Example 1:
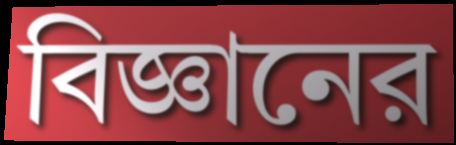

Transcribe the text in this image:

বিজ্ঞানের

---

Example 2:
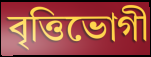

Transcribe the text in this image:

বৃত্তিভোগী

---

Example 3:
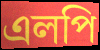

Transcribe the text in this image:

এলপি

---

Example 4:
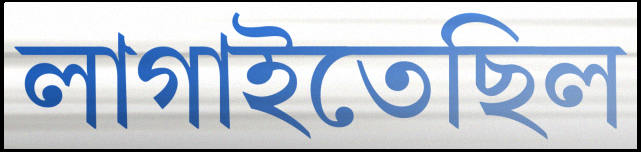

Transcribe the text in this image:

লাগাইতেছিল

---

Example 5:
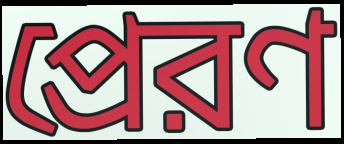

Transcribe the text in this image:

প্রেরণ